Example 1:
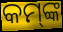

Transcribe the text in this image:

କମ୍‌ଙ୍କ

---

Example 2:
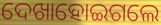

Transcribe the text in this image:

ଦେଖାହୋଇଗଲେ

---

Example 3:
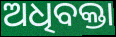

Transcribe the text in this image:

ଅଧିବକ୍ତା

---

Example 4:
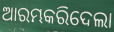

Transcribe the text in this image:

ଆରମ୍ଭକରିଦେଲା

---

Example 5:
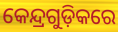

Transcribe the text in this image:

କେନ୍ଦ୍ରଗୁଡ଼ିକରେ